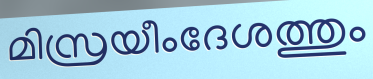
മിസ്രയീംദേശത്തും